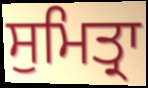
ਸੁਮਿਤ੍ਰਾ